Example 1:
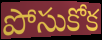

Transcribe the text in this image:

పోసుకోక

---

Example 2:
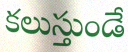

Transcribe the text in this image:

కలుస్తుండే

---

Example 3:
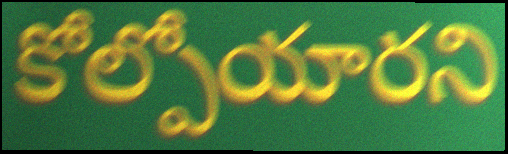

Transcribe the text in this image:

కోల్పోయారని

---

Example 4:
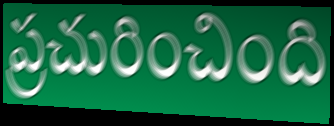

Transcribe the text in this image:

ప్రచురించింది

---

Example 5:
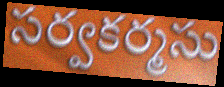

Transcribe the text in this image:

సర్వకర్మసు